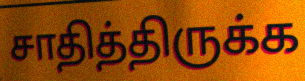
சாதித்திருக்க